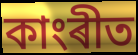
কাংৰীত